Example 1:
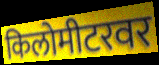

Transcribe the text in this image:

किलोमीटरवर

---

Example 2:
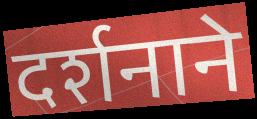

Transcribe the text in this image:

दर्शनाने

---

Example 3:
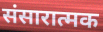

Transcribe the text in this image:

संसारात्मक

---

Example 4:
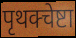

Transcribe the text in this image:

पृथक्चेष्टा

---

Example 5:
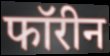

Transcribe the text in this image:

फॉरीन